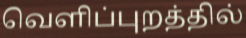
வெளிப்புறத்தில்